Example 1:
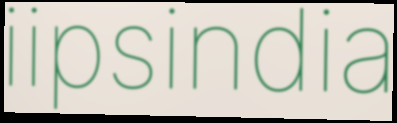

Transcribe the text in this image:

iipsindia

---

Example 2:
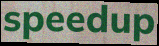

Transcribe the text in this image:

speedup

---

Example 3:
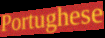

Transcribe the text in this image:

Portughese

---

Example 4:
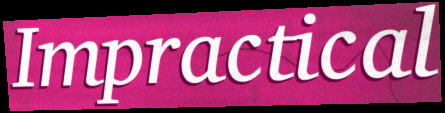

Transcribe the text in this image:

Impractical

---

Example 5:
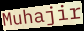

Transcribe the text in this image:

Muhajir